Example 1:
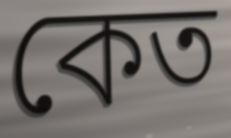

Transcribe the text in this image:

কেত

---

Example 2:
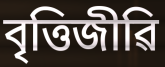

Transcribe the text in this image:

বৃত্তিজীৱি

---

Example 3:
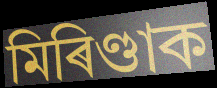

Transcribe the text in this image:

মিৰিণ্ডাক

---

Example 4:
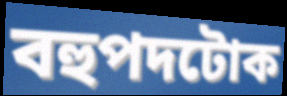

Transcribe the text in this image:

বহুপদটোক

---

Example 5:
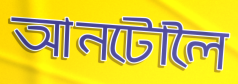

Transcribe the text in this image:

আনটোলৈ